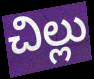
చిల్లు